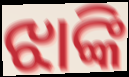
ଝାଙ୍କି